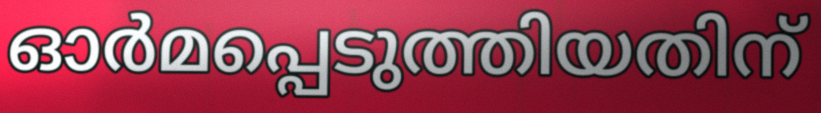
ഓർമപ്പെടുത്തിയതിന്